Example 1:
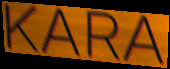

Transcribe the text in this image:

KARA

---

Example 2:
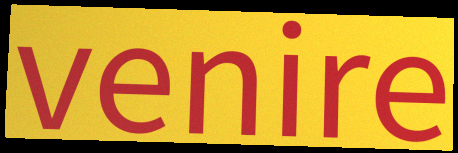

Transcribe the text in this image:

venire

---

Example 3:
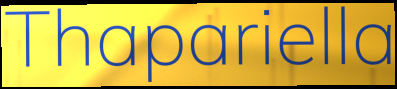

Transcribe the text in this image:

Thapariella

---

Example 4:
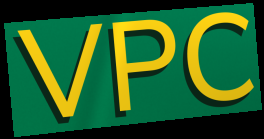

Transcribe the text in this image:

VPC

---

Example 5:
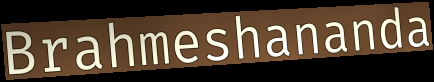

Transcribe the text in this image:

Brahmeshananda